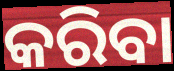
କରିବା